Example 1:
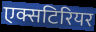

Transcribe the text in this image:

एक्सटिरियर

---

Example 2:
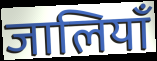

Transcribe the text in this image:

जालियाँ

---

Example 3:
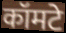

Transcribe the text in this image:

कॉमटे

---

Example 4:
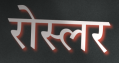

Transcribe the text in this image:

रोस्लर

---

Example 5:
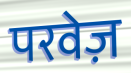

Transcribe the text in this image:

परवेज़